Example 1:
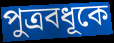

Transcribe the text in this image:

পুত্রবধূকে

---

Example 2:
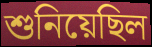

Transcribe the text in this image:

শুনিয়েছিল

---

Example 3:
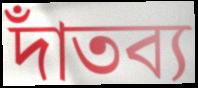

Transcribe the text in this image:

দাঁতব্য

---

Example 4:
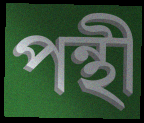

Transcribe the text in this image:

পন্থী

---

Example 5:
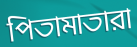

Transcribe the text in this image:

পিতামাতারা